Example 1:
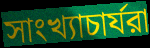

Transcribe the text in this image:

সাংখ্যাচার্যরা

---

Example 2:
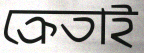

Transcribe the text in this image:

ক্রেতাই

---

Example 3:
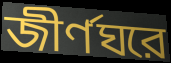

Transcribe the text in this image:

জীর্ণঘরে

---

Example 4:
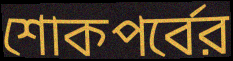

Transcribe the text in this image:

শোকপর্বের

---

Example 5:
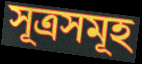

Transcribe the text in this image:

সূত্রসমূহ